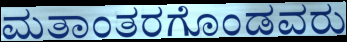
ಮತಾಂತರಗೊಂಡವರು